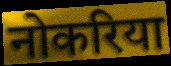
नोकरिया